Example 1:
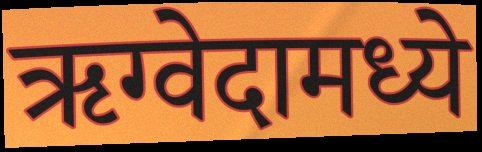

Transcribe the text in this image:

ऋग्वेदामध्ये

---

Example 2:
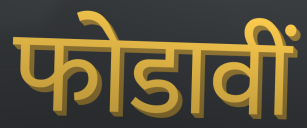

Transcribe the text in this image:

फोडावीं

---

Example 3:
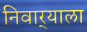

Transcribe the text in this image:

निवार्याला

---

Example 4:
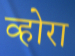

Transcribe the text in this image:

व्होरा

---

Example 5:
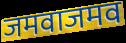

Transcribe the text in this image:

जमवाजमव